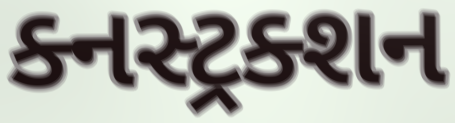
ક્નસ્ટ્રક્શન